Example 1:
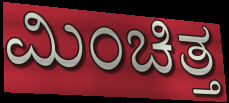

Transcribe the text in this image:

ಮಿಂಚಿತ್ತ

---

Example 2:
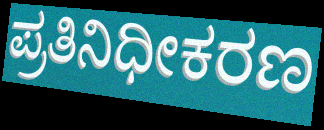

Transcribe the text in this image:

ಪ್ರತಿನಿಧೀಕರಣ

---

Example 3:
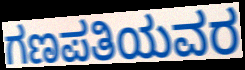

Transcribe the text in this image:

ಗಣಪತಿಯವರ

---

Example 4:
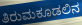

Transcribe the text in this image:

ತಿರುಮಕೂಡಲಿನ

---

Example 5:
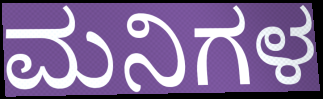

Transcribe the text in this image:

ಮನಿಗಳ